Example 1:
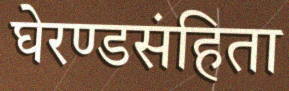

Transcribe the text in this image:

घेरण्डसंहिता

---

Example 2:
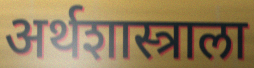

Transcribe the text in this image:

अर्थशास्त्राला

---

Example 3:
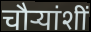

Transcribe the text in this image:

चौर्‍यांशीं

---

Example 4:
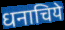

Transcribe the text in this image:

धनाचिये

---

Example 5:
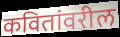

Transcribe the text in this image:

कवितांवरील